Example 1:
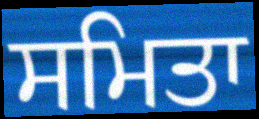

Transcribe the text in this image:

ਸਮਿਤਾ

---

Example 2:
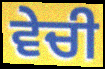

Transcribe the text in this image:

ਵੇਚੀ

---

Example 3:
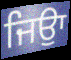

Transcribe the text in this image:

ਜਿਉਾ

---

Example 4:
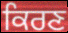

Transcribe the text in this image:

ਕਿਰਣ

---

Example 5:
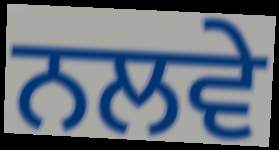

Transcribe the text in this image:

ਨਲਵੇ